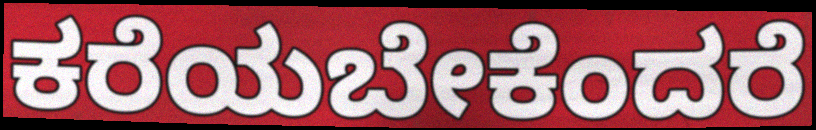
ಕರೆಯಬೇಕೆಂದರೆ